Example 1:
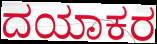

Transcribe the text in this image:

ದಯಾಕರ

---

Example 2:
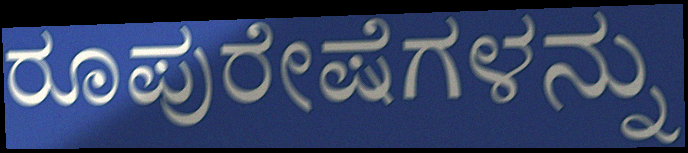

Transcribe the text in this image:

ರೂಪುರೇಷೆಗಳನ್ನು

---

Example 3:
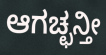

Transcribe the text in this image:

ಆಗಚ್ಛನ್ತೀ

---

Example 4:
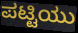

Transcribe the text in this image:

ಪಟ್ಟಿಯು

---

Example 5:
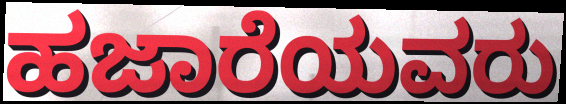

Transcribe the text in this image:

ಹಜಾರೆಯವರು